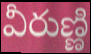
వీరుణ్ణి